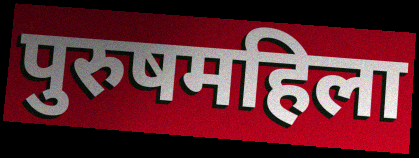
पुरुषमहिला